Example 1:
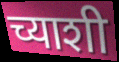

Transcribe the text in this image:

च्याशी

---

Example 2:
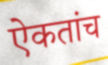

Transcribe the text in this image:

ऐकतांच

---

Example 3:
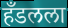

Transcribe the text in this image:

हँडलला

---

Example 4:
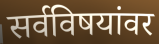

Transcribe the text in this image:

सर्वविषयांवर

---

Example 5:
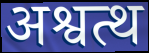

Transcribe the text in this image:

अश्वत्थ